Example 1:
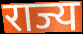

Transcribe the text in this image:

राज्य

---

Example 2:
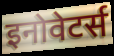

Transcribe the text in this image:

इनोवेटर्स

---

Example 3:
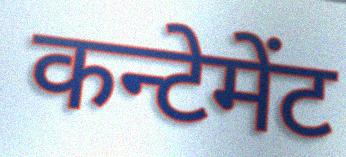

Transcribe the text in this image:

कन्टेमेंट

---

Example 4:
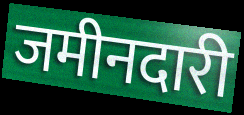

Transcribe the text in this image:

जमीनदारी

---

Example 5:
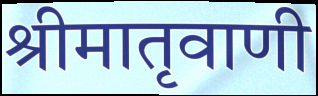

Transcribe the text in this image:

श्रीमातृवाणी